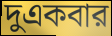
দুএকবার